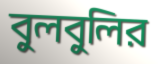
বুলবুলির